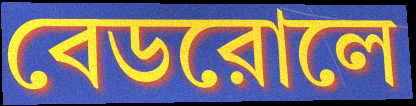
বেডরোলে